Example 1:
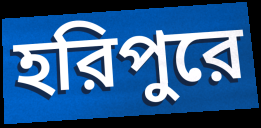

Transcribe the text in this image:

হরিপুরে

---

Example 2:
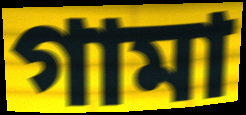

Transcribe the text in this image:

গামা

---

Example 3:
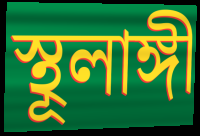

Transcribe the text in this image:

স্থূলাঙ্গী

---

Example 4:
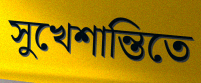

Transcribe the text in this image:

সুখেশান্তিতে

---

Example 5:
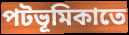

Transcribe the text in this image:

পটভূমিকাতে